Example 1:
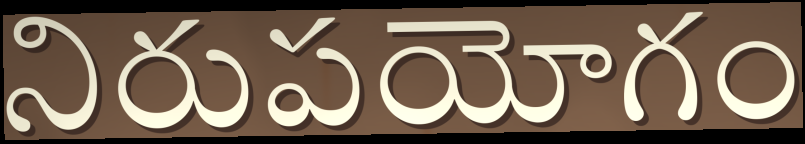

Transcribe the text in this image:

నిరుపయోగం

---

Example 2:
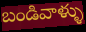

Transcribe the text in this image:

బండివాళ్ళు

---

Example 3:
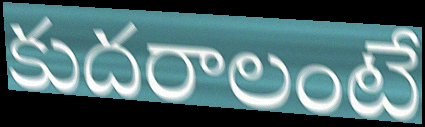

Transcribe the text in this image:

కుదరాలంటే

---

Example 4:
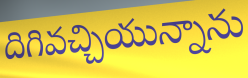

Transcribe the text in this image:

దిగివచ్చియున్నాను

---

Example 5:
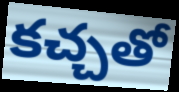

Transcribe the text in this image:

కచ్చతో